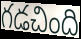
గడచింది